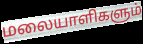
மலையாளிகளும்